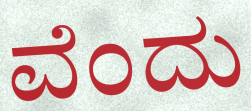
ವೆಂದು